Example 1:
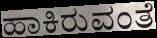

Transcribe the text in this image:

ಹಾಕಿರುವಂತೆ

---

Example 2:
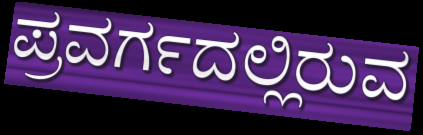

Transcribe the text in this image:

ಪ್ರವರ್ಗದಲ್ಲಿರುವ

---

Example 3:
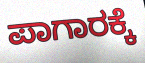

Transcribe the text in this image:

ಪಾಗಾರಕ್ಕೆ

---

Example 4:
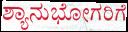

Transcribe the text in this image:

ಶ್ಯಾನುಭೋಗರಿಗೆ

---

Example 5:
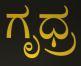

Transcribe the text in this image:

ಗೃಧ್ರ